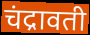
चंद्रावती